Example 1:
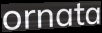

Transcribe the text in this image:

ornata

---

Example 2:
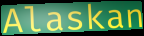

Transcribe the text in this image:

Alaskan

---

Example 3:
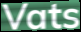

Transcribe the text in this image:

Vats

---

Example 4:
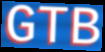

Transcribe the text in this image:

GTB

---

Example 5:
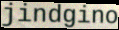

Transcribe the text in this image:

jindgino